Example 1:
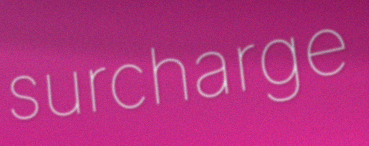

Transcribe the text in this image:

surcharge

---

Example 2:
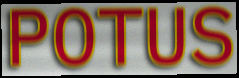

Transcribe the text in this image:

POTUS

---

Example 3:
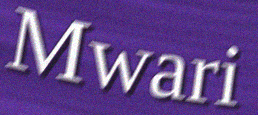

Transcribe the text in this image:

Mwari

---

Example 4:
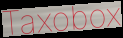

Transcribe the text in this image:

Taxobox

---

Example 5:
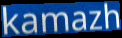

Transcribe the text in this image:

kamazh